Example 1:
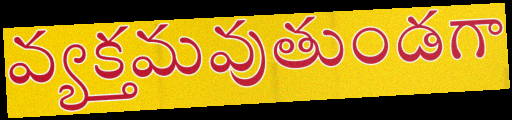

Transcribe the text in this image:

వ్యక్తమవుతుండగా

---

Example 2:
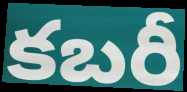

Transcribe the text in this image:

కబరీ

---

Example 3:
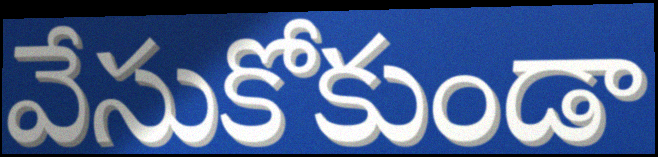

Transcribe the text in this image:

వేసుకోకుండా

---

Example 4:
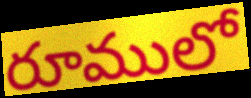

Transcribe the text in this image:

రూములో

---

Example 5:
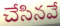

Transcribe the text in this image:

చేసినవే